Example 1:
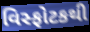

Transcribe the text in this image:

વિસ્ફોટકથી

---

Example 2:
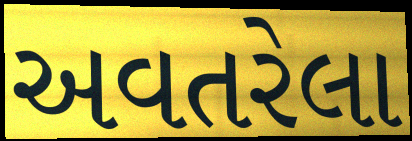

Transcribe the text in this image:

અવતરેલા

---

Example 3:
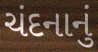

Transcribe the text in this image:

ચંદનાનું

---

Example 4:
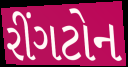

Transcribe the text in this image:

રીંગટોન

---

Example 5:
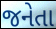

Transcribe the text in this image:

જનેતા